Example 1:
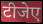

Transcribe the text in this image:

टीजेए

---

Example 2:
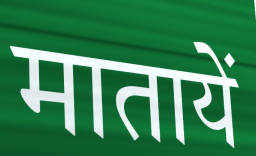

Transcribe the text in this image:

मातायें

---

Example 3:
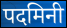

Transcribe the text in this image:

पदमिनी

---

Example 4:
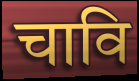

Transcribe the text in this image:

चावि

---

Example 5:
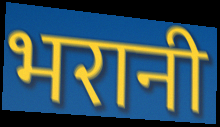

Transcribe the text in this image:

भरानी